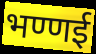
भण्णई